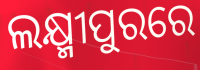
ଲକ୍ଷ୍ମୀପୁରରେ